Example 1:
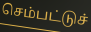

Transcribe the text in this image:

செம்பட்டுச்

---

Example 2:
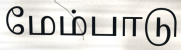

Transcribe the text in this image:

மேம்பாடு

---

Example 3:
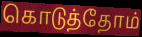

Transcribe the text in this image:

கொடுத்தோம்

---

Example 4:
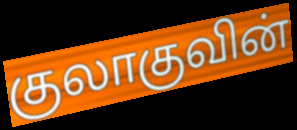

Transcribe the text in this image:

குலாகுவின்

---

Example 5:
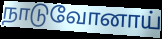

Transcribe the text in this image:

நாடுவோனாய்